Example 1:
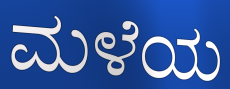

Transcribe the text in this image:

ಮಳೆಯ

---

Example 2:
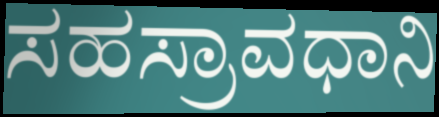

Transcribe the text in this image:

ಸಹಸ್ರಾವಧಾನಿ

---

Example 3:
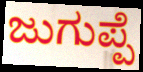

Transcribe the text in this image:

ಜುಗುಪ್ಪೆ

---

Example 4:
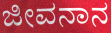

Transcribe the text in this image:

ಜೀವನಾನ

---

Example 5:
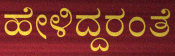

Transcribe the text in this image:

ಹೇಳಿದ್ದರಂತೆ